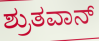
ಶ್ರುತವಾನ್